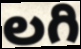
లగి